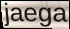
jaega